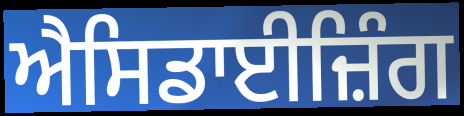
ਐਸਿਡਾਈਜ਼ਿੰਗ